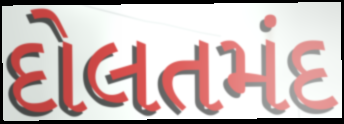
દોલતમંદ